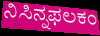
ನಿಸಿನ್ನಫಲಕಂ